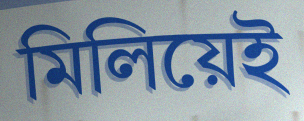
মিলিয়েই